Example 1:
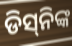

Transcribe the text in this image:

ଡିସ୍‌ନିଙ୍କ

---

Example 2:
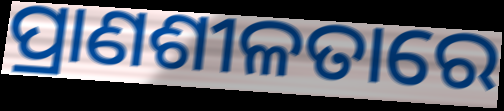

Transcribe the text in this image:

ପ୍ରାଣଶୀଳତାରେ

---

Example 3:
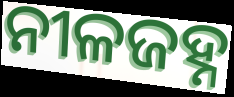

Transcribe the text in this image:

ନୀଳଜହ୍ନ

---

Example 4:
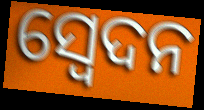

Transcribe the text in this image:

ସ୍ଵେଦନ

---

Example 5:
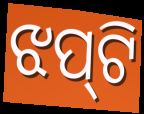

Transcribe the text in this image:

ଝପ୍‌ଟି